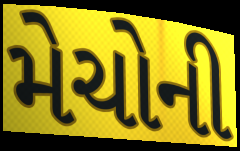
મેચોની